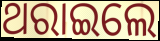
ଥରାଇଲେ